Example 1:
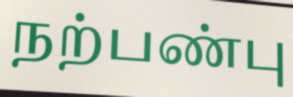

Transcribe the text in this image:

நற்பண்பு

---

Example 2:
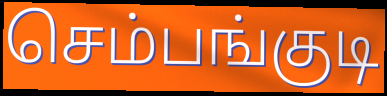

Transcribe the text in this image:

செம்பங்குடி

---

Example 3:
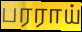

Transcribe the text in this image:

பரராய்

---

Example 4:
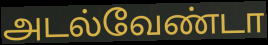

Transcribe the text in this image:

அடல்வேண்டா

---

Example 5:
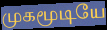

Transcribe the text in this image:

முகமூடியே